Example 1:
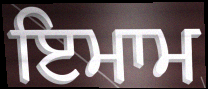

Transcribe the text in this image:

ਇਮਾਮ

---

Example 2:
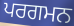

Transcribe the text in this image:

ਪਰਗਮਨ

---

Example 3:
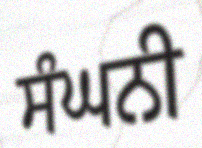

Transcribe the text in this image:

ਸੰਘਨੀ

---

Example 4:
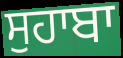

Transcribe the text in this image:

ਸੁਹਾਬਾ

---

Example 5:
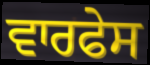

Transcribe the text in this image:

ਵਾਰਫੇਸ